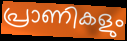
പ്രാണികളും